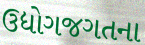
ઉદ્યોગજગતના